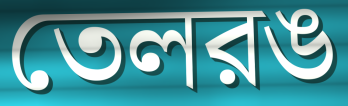
তেলরঙ